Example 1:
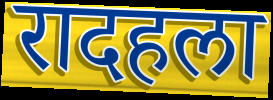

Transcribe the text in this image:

रादहला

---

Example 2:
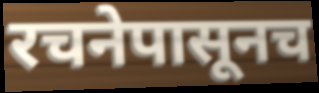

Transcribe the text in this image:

रचनेपासूनच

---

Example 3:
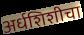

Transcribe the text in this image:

अर्धशिशीचा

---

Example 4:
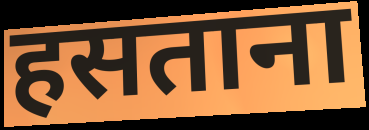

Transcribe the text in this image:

हसताना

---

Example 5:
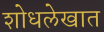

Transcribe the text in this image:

शोधलेखात